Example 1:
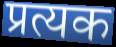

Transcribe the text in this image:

प्रत्यक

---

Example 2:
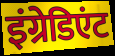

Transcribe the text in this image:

इंग्रेडिएंट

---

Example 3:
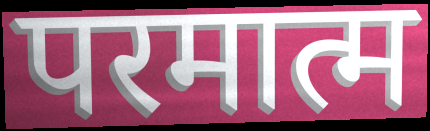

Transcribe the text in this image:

परमात्म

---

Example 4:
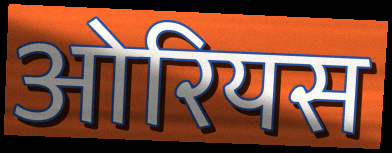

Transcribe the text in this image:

ओरियस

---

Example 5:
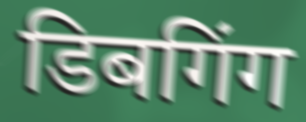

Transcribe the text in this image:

डिबगिंग